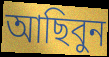
আছিবুন